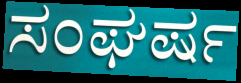
ಸಂಘರ್ಷ